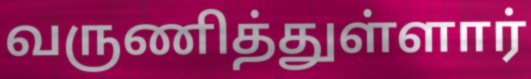
வருணித்துள்ளார்